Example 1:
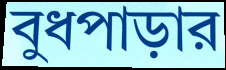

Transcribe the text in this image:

বুধপাড়ার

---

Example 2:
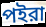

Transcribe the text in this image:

পইরা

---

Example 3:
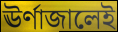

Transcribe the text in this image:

ঊর্ণাজালেই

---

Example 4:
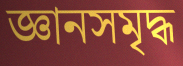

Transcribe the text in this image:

জ্ঞানসমৃদ্ধ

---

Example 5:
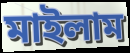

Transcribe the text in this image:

মাইলাম